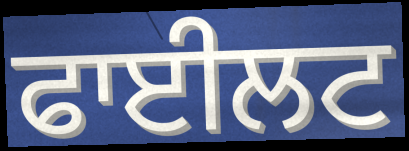
ਫਾਈਲਟ